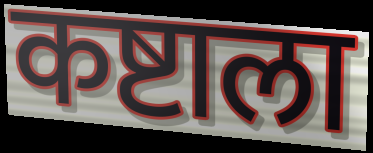
कष्टाला